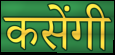
कसेंगी